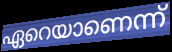
ഏറെയാണെന്ന്